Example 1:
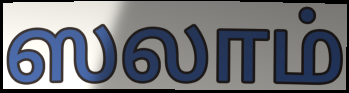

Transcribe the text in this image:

ஸலாம்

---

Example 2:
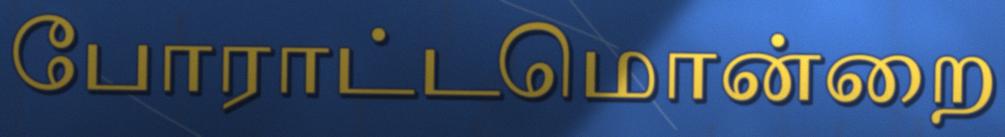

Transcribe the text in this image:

போராட்டமொன்றை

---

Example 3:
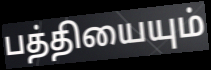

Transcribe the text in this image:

பத்தியையும்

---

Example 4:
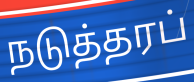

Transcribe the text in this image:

நடுத்தரப்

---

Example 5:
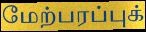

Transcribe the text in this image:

மேற்பரப்புக்